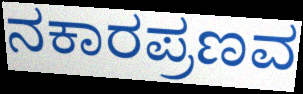
ನಕಾರಪ್ರಣವ